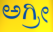
ಅಗ್ರೀ